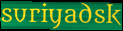
suriyadsk